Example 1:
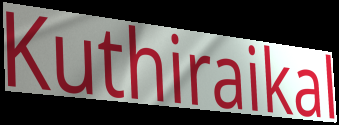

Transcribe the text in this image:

Kuthiraikal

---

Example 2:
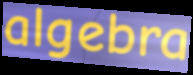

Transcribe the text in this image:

algebra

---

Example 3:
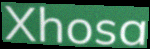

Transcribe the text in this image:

Xhosa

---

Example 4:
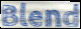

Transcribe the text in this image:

Blend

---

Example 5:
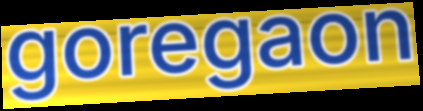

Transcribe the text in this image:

goregaon